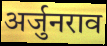
अर्जुनराव